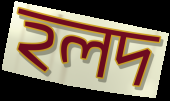
হলদ